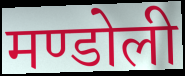
मण्डोली